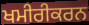
ਖਮੀਰੀਕਰਨ